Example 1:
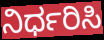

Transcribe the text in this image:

ನಿರ್ಧರಿಸಿ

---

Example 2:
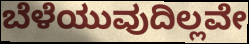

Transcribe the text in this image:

ಬೆಳೆಯುವುದಿಲ್ಲವೇ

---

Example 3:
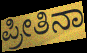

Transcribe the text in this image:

ಪ್ರೀತಿನಾ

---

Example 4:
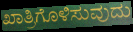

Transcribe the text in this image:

ಖಾತ್ರಿಗೊಳಿಸುವುದು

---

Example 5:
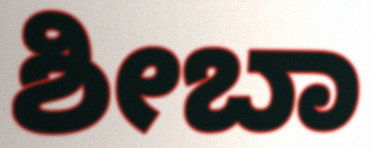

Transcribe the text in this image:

ಶೀಬಾ